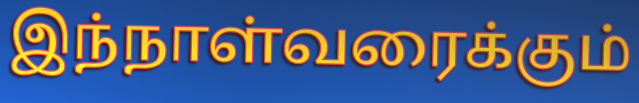
இந்நாள்வரைக்கும்